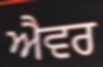
ਐਵਰ